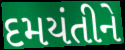
દમયંતીને